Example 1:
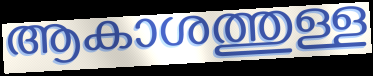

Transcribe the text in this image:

ആകാശത്തുള്ള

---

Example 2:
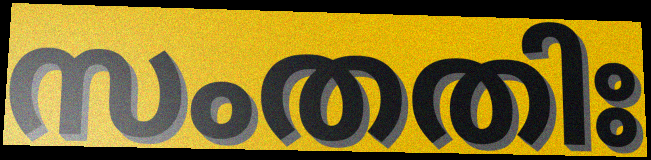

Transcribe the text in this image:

സംതതിഃ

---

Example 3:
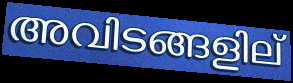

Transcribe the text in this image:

അവിടങ്ങളില്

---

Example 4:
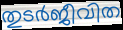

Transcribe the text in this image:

തുടർജീവിത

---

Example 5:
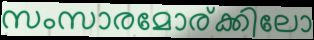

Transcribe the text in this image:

സംസാരമോര്ക്കിലോ